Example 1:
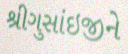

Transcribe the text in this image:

શ્રીગુસાંઇજીને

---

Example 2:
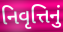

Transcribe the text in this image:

નિવૃત્તિનું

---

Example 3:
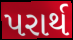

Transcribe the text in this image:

પરાર્થ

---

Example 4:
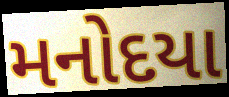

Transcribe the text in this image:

મનોદયા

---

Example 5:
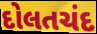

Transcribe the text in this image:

દોલતચંદ